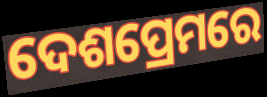
ଦେଶପ୍ରେମରେ